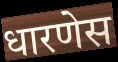
धारणेस